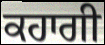
ਕਹਾਗੀ